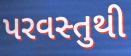
પરવસ્તુથી